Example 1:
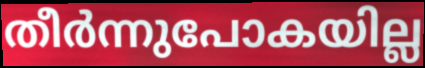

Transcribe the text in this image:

തീർന്നുപോകയില്ല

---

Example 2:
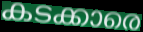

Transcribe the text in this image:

കടക്കാരെ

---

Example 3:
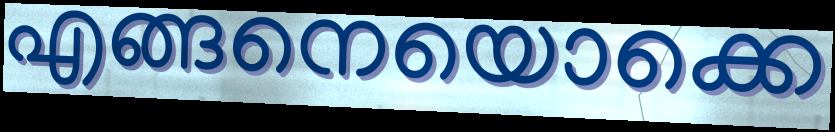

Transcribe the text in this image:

എങ്ങനെയൊക്കെ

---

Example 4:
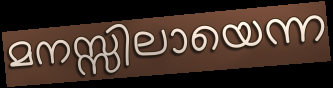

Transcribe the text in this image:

മനസ്സിലായെന്ന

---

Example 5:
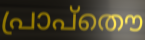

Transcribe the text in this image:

പ്രാപ്തൌ